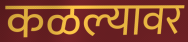
कळल्यावर